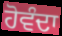
ਹੋਵੰਦਾ